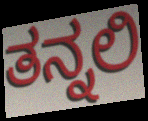
ತನ್ನಲಿ